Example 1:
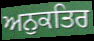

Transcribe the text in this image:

ਅਨੁਕਤਿਰ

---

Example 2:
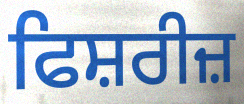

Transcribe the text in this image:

ਫਿਸ਼ਰੀਜ਼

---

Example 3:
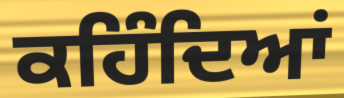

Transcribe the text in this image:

ਕਹਿੰਦਿਆਂ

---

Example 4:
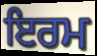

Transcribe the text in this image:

ਇਰਮ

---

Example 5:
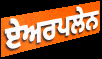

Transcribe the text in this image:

ਏਅਰਪਲੇਨ